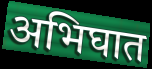
अभिघात